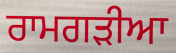
ਰਾਮਗੜੀਆ